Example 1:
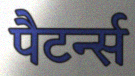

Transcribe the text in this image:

पैटर्न्स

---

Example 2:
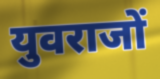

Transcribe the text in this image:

युवराजों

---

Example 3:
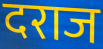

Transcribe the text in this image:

दराज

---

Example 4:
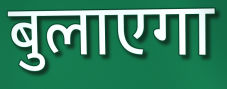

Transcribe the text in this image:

बुलाएगा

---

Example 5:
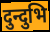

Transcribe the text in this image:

दुन्दुभि